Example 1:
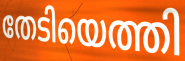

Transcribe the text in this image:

തേടിയെത്തി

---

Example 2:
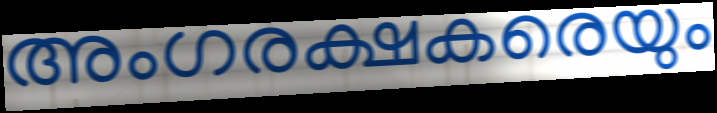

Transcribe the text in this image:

അംഗരക്ഷകരെയും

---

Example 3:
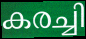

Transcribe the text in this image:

കരച്ചി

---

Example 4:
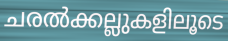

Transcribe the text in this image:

ചരൽക്കല്ലുകളിലൂടെ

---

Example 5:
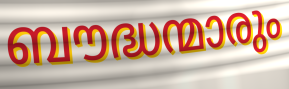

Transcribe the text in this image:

ബൗദ്ധന്മാരും